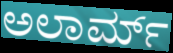
ಅಲಾರ್ಮ್